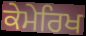
ਕੇਮੇਰਿਖ